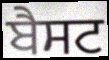
ਬੈਸਟ